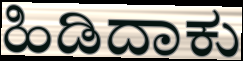
ಹಿಡಿದಾಕು